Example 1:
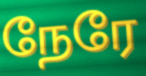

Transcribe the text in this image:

நேரே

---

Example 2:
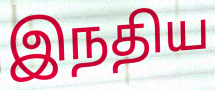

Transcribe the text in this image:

இநதிய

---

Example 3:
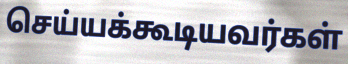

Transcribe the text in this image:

செய்யக்கூடியவர்கள்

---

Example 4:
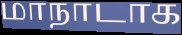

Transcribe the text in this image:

மாநாடாக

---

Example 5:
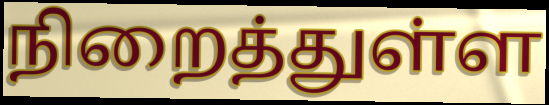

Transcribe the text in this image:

நிறைத்துள்ள